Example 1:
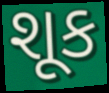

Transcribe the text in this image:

શૂક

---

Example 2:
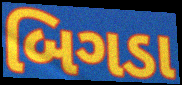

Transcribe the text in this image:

બિગડા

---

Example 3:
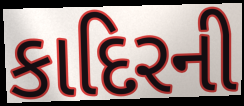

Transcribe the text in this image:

કાદિરની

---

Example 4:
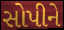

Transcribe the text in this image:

સોપીને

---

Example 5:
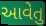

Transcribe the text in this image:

આવેતુ